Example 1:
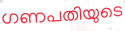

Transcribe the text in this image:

ഗണപതിയുടെ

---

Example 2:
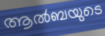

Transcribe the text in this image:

ആൽബയുടെ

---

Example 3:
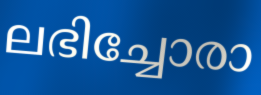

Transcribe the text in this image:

ലഭിച്ചോരാ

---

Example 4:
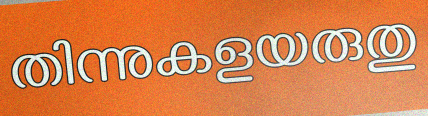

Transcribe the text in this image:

തിന്നുകളയരുതു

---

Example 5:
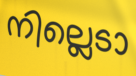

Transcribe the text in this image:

നില്ലെടാ